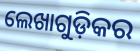
ଲେଖାଗୁଡ଼ିକର